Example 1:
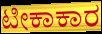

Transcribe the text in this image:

ಟೀಕಾಕಾರ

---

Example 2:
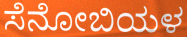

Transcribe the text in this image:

ಸೆನೋಬಿಯಳ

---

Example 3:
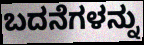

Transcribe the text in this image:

ಬದನೆಗಳನ್ನು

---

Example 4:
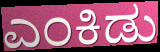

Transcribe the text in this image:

ಎಂಕಿಡು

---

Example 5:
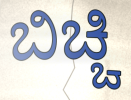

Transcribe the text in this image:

ಬಿಚ್ಚಿ